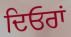
ਦਿਓਰਾਂ